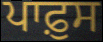
ਪਾਫ਼ੁਸ